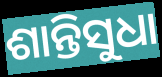
ଶାନ୍ତିସୁଧା